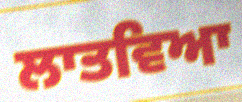
ਲਾਤਵਿਆ